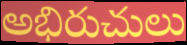
అభిరుచులు